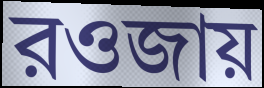
রওজায়